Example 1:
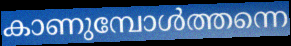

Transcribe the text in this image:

കാണുമ്പോൾത്തന്നെ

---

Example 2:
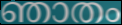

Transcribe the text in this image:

ഞാതം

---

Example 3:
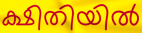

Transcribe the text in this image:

ക്ഷിതിയിൽ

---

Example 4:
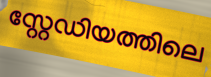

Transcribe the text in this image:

സ്റ്റേഡിയത്തിലെ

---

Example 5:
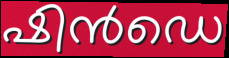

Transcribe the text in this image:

ഷിൻഡെ